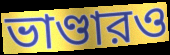
ভাণ্ডারও